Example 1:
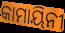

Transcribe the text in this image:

କାମାୟିନୀ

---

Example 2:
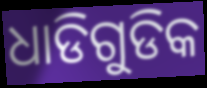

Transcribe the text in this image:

ଧାଡିଗୁଡିକ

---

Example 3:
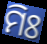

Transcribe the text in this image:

ମିଃ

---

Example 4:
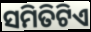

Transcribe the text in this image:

ସମିତିଟିଏ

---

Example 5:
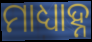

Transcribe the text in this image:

ମାଧ୍ୟାହ୍ନ